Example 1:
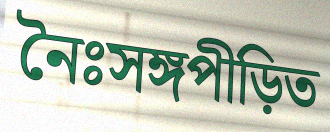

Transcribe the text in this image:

নৈঃসঙ্গপীড়িত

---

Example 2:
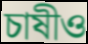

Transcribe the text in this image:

চাষীও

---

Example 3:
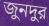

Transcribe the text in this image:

জুনদুর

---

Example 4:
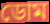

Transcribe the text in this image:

ডোম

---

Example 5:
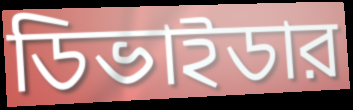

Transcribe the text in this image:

ডিভাইডার